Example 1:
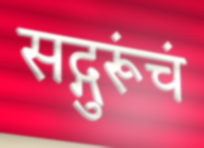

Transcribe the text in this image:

सद्गुरूंचं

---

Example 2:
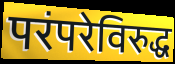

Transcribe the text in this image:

परंपरेविरुद्ध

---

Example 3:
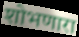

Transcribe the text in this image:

शोभणारा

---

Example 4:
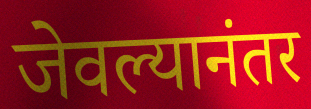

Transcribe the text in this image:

जेवल्यानंतर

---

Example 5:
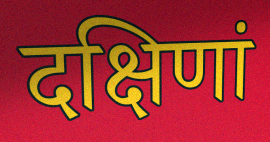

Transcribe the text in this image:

दक्षिणां